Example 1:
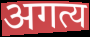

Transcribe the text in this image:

अगत्य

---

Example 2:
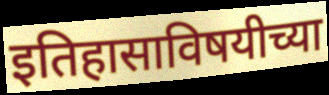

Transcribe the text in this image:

इतिहासाविषयीच्या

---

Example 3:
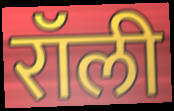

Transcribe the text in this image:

रॉली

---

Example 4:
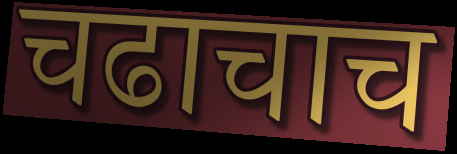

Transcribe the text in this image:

चढाचाच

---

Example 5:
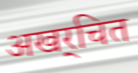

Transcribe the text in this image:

अखर्चित